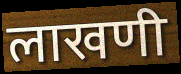
लाखणी